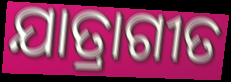
ଯାତ୍ରାଗୀତ